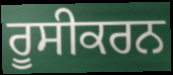
ਰੂਸੀਕਰਨ